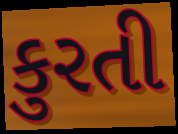
કુરતી